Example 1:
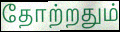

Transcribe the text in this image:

தோற்றதும்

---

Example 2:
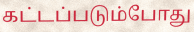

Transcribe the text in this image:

கட்டப்படும்போது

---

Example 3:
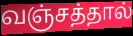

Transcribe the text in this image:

வஞ்சத்தால்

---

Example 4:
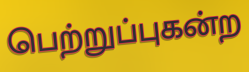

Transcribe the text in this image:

பெற்றுப்புகன்ற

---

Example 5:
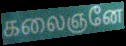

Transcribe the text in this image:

கலைஞனே